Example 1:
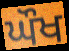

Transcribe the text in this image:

ਘੌਖ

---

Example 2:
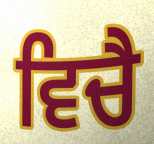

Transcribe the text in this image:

ਵਿਚੈ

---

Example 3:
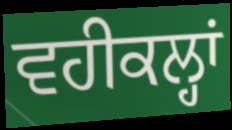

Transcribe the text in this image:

ਵਹੀਕਲ੍ਹਾਂ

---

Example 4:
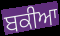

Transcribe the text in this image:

ਬਕੀਆ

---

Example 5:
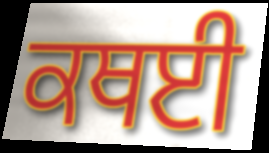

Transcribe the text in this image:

ਕਥਈ